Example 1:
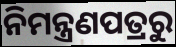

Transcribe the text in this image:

ନିମନ୍ତ୍ରଣପତ୍ରରୁ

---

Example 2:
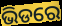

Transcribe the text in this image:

ଭିଡରେ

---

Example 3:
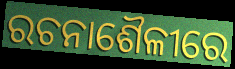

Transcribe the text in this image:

ରଚନାଶୈଳୀରେ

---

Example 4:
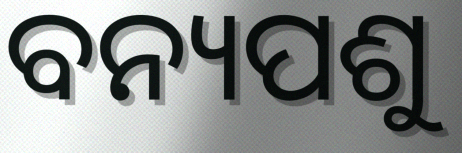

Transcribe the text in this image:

ବନ୍ୟପଶୁ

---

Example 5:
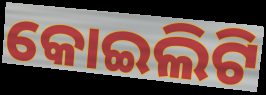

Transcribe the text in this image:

କୋଇଲିଟି